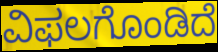
ವಿಫಲಗೊಂಡಿದೆ